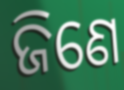
ଜିଣେ